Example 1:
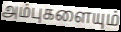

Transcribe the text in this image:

அம்புகளையும்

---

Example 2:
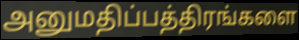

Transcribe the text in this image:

அனுமதிப்பத்திரங்களை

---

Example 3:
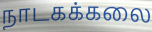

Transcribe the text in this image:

நாடகக்கலை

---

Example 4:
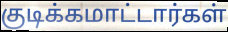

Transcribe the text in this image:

குடிக்கமாட்டார்கள்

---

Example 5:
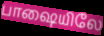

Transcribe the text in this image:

பாஷையிலே